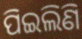
ପିଇଲିଣି